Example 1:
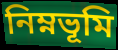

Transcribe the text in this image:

নিম্নভূমি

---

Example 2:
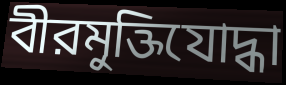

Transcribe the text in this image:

বীরমুক্তিযোদ্ধা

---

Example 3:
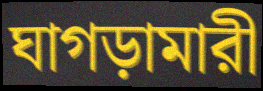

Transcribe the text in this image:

ঘাগড়ামারী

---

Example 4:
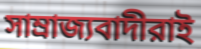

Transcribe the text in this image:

সাম্রাজ্যবাদীরাই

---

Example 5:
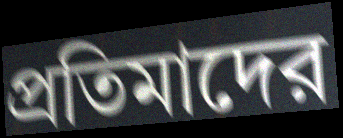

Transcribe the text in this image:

প্রতিমাদের